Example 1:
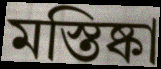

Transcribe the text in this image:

মস্তিষ্কা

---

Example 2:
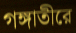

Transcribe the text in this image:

গঙ্গাতীরে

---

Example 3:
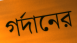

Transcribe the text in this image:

গর্দানের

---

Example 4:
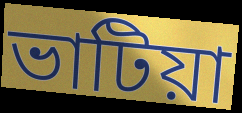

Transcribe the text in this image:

ভাটিয়া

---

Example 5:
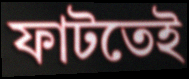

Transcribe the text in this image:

ফাটতেই